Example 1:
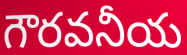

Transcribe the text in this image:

గౌరవనీయ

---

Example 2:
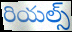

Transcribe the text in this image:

రియల్స్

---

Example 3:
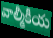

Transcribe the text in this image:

వాల్మీకీయ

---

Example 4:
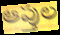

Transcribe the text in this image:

ఆప్తుల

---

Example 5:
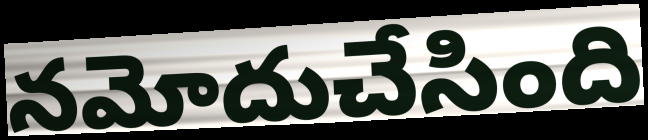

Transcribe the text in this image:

నమోదుచేసింది